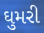
ઘુમરી